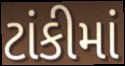
ટાંકીમાં